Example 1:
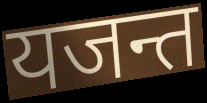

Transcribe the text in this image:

यजन्त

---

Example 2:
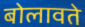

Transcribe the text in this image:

बोलावते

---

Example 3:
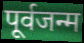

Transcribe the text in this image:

पूर्वजन्म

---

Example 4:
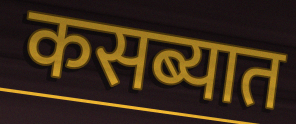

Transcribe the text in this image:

कसब्यात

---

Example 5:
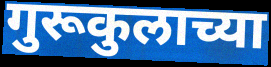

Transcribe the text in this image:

गुरूकुलाच्या